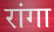
रांगा